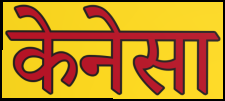
केनेसा